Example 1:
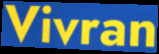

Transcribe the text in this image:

Vivran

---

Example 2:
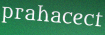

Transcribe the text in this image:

prahacect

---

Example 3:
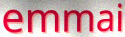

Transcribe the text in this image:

emmai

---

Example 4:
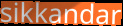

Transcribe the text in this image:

sikkandar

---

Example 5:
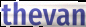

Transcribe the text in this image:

thevan